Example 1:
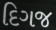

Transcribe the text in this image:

દિગજ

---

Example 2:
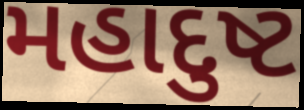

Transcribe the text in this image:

મહાદુષ્ટ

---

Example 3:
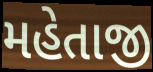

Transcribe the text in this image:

મહેતાજી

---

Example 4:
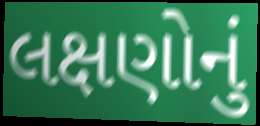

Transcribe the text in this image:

લક્ષણોનું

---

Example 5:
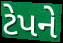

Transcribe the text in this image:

ટેપને